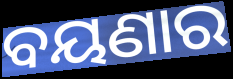
ବୟଣାର